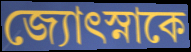
জ্যোৎস্নাকে